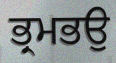
ਭ੍ਰਮਭਉ